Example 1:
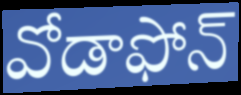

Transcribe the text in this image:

వోడాఫోన్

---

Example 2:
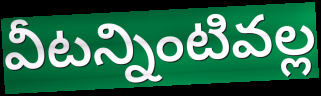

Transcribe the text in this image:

వీటన్నింటివల్ల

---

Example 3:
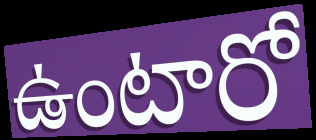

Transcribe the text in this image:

ఉంటారో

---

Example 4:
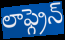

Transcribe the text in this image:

లాఫ్గ్రెన్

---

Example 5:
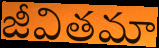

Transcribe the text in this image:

జీవితమా